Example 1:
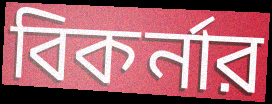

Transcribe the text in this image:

বিকর্নার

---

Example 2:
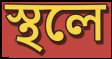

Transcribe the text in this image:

স্থলে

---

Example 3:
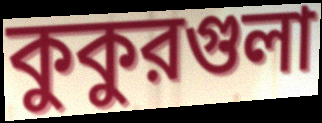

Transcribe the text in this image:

কুকুরগুলা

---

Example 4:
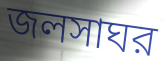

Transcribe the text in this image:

জলসাঘর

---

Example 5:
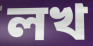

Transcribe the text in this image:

লখ